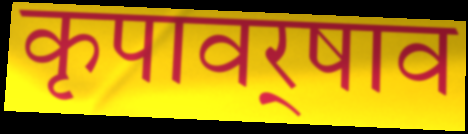
कृपावर्षाव